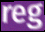
reg